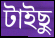
টাইছু